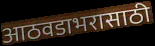
आठवडाभरासाठी